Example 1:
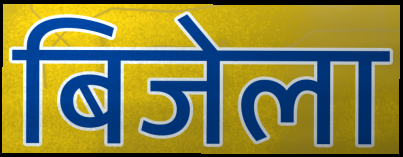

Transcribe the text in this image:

बिजेला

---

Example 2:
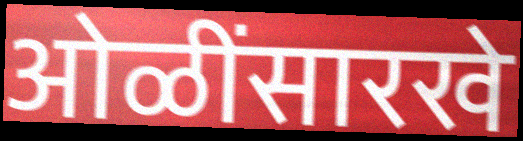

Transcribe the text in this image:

ओळींसारखे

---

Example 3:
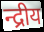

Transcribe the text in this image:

न्द्रीय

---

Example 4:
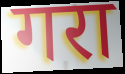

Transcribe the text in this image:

गरा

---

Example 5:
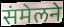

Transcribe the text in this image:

संमेलने